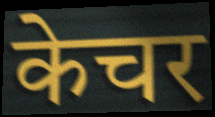
केचर